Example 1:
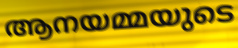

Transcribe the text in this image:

ആനയമ്മയുടെ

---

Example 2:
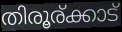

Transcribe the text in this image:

തിരൂര്ക്കാട്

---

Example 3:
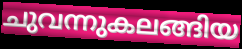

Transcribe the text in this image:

ചുവന്നുകലങ്ങിയ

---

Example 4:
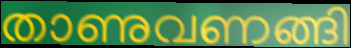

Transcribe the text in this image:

താണുവണങ്ങി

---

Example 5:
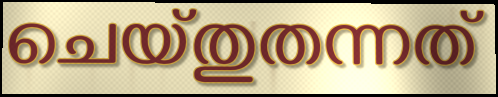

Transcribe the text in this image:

ചെയ്തുതന്നത്